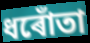
ধৰোঁতা